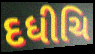
દધીચિ